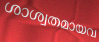
ശാശ്വതമായവ